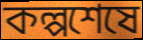
কল্পশেষে